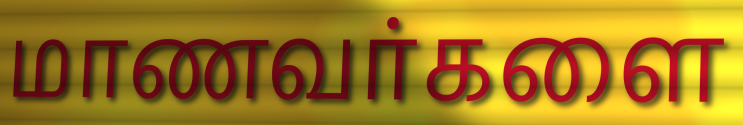
மாணவர்களை